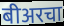
बीअरचा